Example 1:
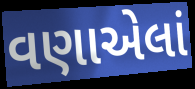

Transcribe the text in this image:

વણાએલાં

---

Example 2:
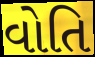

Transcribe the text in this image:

વોતિ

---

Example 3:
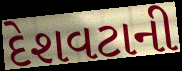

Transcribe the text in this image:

દેશવટાની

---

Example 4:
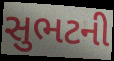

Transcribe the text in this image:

સુભટની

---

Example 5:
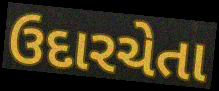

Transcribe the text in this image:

ઉદારચેતા